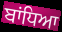
ਬਾਂਧਿਆ